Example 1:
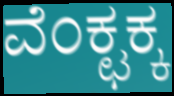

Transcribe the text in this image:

ವೆಂಕ್ಟಕ್ಕ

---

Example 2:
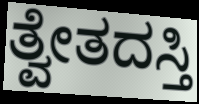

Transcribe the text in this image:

ತ್ವೇತದಸ್ತಿ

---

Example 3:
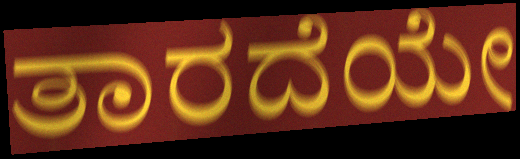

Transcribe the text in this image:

ತಾರದೆಯೇ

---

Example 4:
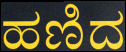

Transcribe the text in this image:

ಹಣಿದ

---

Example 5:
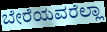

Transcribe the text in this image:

ಬೇರೆಯವರೆಲ್ಲಾ